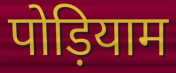
पोड़ियाम